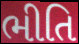
ભીતિ